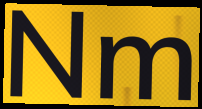
Nm